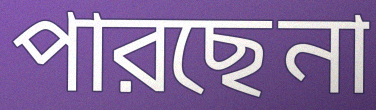
পারছেনা